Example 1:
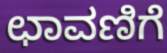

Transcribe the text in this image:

ಛಾವಣಿಗೆ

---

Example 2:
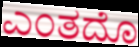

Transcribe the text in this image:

ಎಂತದೊ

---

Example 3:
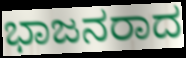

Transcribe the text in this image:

ಭಾಜನರಾದ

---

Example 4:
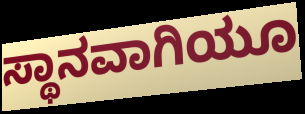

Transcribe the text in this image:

ಸ್ಥಾನವಾಗಿಯೂ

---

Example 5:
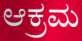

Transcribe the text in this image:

ಆಕ್ರಮ